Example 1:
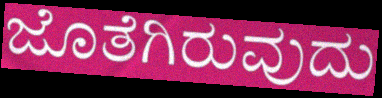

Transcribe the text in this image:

ಜೊತೆಗಿರುವುದು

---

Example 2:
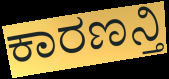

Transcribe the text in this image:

ಕಾರಣನ್ತಿ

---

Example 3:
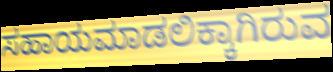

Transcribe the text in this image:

ಸಹಾಯಮಾಡಲಿಕ್ಕಾಗಿರುವ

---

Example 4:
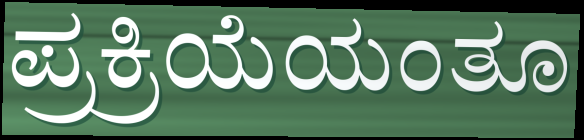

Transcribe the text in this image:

ಪ್ರಕ್ರಿಯೆಯಂತೂ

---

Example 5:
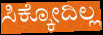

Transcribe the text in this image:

ಸಿಕ್ಕೋದಿಲ್ಲ